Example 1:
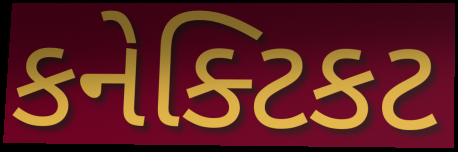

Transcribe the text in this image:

કનેક્ટિકટ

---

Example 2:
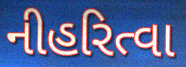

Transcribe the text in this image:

નીહરિત્વા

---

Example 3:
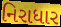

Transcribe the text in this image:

નિરાધાર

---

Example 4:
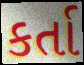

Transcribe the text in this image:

કર્તા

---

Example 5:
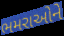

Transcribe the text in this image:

ભમરાઓને